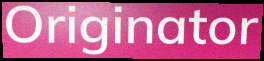
Originator